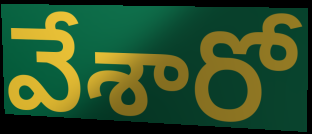
వేశారో